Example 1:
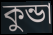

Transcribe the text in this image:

কুন্ডা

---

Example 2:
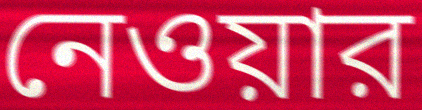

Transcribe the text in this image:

নেওয়ার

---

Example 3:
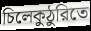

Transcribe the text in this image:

চিলেকুঠুরিতে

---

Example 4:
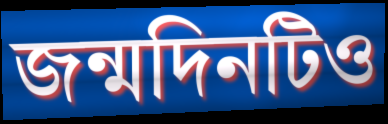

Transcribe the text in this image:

জন্মদিনটিও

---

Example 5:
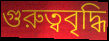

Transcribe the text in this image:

গুরুত্ববৃদ্ধি